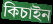
কিচাইন